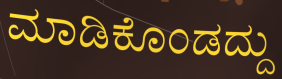
ಮಾಡಿಕೊಂಡದ್ದು